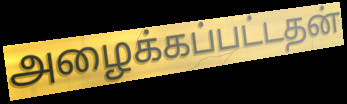
அழைக்கப்பட்டதன்